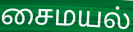
சைமயல்